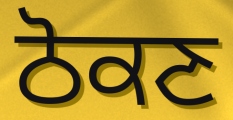
ਠੋਕਣ